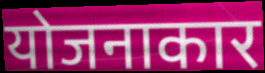
योजनाकार